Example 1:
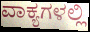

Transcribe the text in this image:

ವಾಕ್ಯಗಳಲ್ಲಿ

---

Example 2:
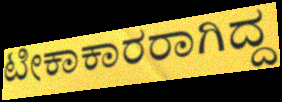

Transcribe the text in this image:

ಟೀಕಾಕಾರರಾಗಿದ್ದ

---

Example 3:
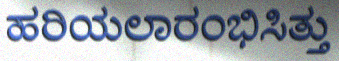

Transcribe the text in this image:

ಹರಿಯಲಾರಂಭಿಸಿತ್ತು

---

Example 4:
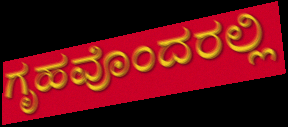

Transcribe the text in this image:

ಗೃಹವೊಂದರಲ್ಲಿ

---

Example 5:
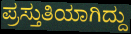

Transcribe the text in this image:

ಪ್ರಸ್ತುತಿಯಾಗಿದ್ದು